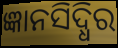
ଜ୍ଞାନସିଦ୍ଧିର